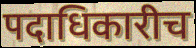
पदाधिकारीच